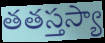
తతస్తస్యా